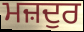
ਮਜ਼ਦੁਰ